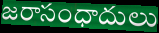
జరాసంధాదులు